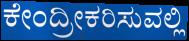
ಕೇಂದ್ರೀಕರಿಸುವಲ್ಲಿ